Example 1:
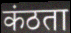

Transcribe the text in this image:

कंठता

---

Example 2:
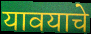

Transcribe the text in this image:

यावयाचे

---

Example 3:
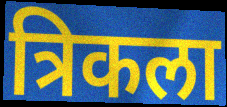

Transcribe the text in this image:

त्रिकला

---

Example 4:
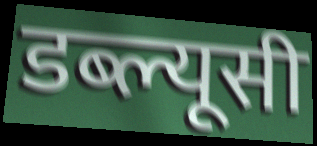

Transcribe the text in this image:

डब्ल्यूसी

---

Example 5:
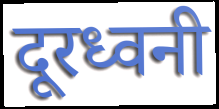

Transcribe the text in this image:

दूरध्वनी